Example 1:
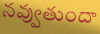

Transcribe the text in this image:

నవ్వుతుందా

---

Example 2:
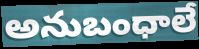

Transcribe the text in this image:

అనుబంధాలే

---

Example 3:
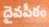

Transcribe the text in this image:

దైవపీఠం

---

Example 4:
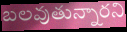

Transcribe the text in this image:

బలవుతున్నారని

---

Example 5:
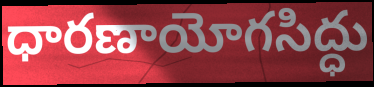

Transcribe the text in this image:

ధారణాయోగసిద్ధు